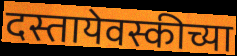
दस्तायेवस्कीच्या